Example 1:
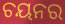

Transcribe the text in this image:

ଚୟନର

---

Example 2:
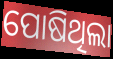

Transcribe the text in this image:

ପୋଷିଥିଲା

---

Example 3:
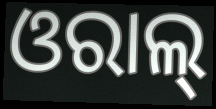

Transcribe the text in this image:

ଓରାଲ୍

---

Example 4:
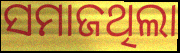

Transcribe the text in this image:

ସମାଜଥିଲା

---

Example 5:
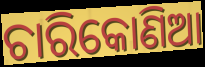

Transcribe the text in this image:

ଚାରିକୋଣିଆ